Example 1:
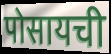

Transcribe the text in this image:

पोसायची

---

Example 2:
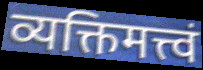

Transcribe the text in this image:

व्यक्तिमत्त्वं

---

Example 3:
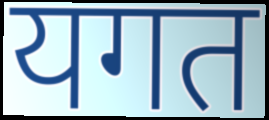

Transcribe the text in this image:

यगत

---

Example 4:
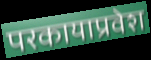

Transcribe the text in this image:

परकायाप्रवेश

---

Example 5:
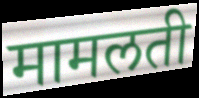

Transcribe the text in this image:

मामलती